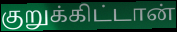
குறுக்கிட்டான்